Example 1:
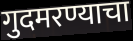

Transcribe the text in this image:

गुदमरण्याचा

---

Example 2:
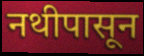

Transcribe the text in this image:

नथीपासून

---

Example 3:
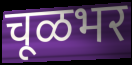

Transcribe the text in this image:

चूळभर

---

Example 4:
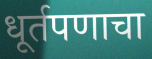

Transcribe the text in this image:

धूर्तपणाचा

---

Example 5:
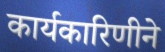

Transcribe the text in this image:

कार्यकारिणीने